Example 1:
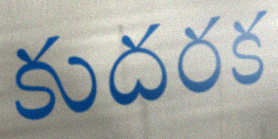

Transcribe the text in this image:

కుదరక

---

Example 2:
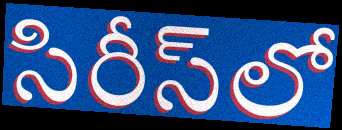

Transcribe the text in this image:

సిరీస్‌లో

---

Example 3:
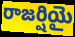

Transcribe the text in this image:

రాజర్షియై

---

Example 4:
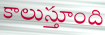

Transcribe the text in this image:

కాలుస్తూంది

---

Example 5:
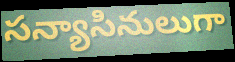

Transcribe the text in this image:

సన్యాసినులుగా